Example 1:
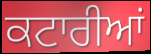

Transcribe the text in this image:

ਕਟਾਰੀਆਂ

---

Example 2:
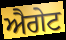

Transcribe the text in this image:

ਐਗੇਟ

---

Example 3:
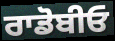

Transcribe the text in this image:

ਰਾਡੋਬੀਓ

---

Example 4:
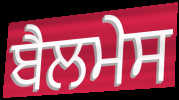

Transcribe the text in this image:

ਬੈਲਮੇਸ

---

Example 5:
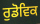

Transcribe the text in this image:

ਰੁਡੋਵਿਕ